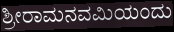
ಶ್ರೀರಾಮನವಮಿಯಂದು